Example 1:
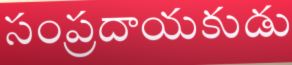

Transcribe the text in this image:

సంప్రదాయకుడు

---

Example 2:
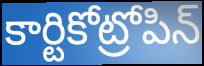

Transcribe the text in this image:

కార్టికోట్రోపిన్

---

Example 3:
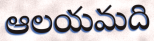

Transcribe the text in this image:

ఆలయమది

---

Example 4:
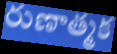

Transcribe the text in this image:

రుణాత్మక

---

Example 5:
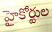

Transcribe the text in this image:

హైకోర్టుల